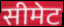
सीमेट